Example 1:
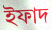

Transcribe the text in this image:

ইফাদ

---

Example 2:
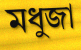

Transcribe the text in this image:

মধুজা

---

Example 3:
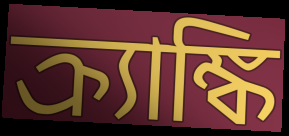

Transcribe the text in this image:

ক্র্যাঙ্কি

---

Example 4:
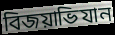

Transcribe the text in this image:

বিজয়াভিযান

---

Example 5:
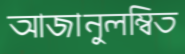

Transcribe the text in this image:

আজানুলম্বিত